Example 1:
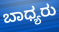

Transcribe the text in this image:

ಬಾಧ್ಯರು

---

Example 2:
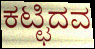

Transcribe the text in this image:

ಕಟ್ಟಿದವ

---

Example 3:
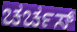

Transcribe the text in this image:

ಚರ್ಚಸ್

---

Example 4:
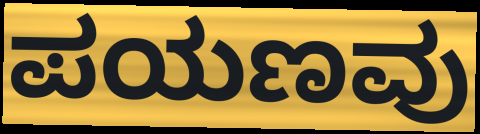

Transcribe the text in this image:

ಪಯಣವು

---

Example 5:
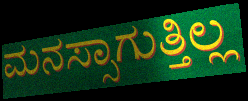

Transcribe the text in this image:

ಮನಸ್ಸಾಗುತ್ತಿಲ್ಲ